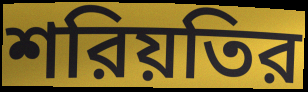
শরিয়তির